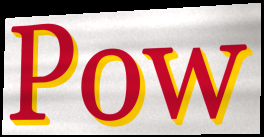
Pow